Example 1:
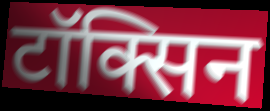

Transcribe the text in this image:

टॉक्सिन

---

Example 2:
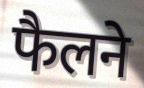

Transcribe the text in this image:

फैलने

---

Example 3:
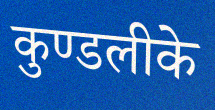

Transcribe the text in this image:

कुण्डलीके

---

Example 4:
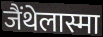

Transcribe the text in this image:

जैंथेलास्मा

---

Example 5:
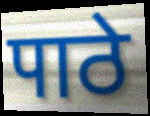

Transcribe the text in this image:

पाठे